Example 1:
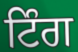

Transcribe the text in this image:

ਟਿੰਗ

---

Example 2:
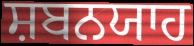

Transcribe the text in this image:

ਸ਼ਬਨਯਾਹ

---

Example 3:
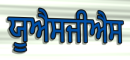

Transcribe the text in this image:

ਯੂਐਸਜੀਐਸ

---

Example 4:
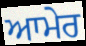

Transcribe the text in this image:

ਆਮੇਰ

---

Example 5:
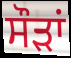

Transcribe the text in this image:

ਸੌੜਾਂ